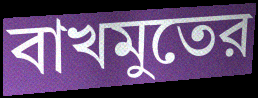
বাখমুতের